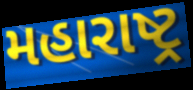
મહારાષ્ટ્ર